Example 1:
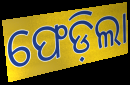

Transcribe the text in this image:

ଫେଡ଼ିଲା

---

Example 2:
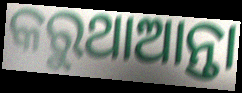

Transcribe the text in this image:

କରୁଥାଆନ୍ତା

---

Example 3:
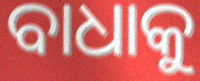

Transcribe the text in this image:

ବାଧାକୁ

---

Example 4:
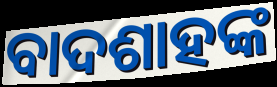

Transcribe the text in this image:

ବାଦଶାହଙ୍କ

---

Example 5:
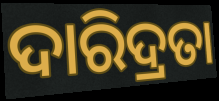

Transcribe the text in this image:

ଦାରିଦ୍ରତା